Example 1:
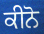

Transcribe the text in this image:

ਕੀਨੋ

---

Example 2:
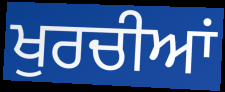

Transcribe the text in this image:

ਖੁਰਚੀਆਂ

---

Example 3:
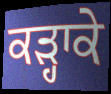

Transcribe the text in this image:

ਕੜ੍ਹਾਕੇ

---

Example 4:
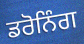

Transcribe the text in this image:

ਡਰੋਨਿੰਗ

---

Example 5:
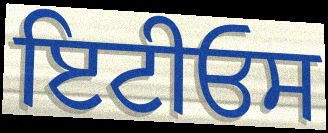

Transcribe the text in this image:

ਇਟੀਓਸ